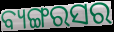
ବ୍ୟଙ୍ଗରସର